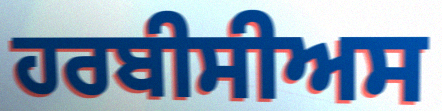
ਹਰਬੀਸੀਅਸ